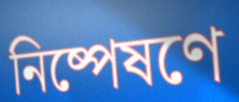
নিষ্পেষণে